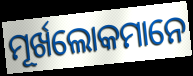
ମୂର୍ଖଲୋକମାନେ